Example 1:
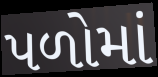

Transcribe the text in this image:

પળોમાં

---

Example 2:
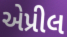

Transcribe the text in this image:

એપ્રીલ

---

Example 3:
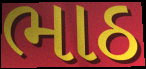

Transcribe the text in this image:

ભાઠ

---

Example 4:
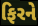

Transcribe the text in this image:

ફિરને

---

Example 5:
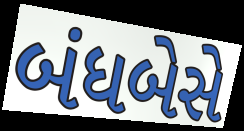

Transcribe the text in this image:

બંધબેસે